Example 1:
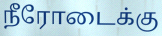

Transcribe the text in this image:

நீரோடைக்கு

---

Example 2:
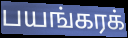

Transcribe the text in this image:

பயங்கரக்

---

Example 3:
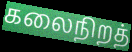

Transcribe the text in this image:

கலைநிறத்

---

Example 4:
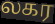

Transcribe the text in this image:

லகர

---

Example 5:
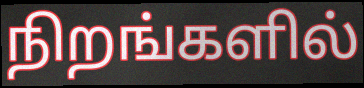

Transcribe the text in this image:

நிறங்களில்